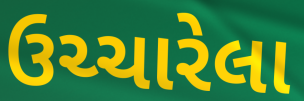
ઉચ્ચારેલા